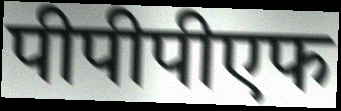
पीपीपीएफ